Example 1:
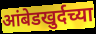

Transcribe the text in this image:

आंबेडखुर्दच्या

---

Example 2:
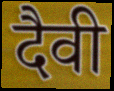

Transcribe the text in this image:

दैवी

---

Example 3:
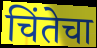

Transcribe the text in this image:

चिंतेचा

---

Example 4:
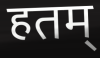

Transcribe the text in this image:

हतम्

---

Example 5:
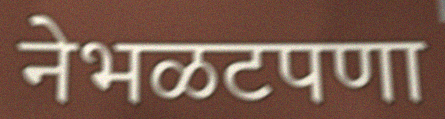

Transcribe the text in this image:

नेभळटपणा